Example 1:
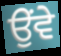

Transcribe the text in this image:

ਉੰਵੇ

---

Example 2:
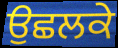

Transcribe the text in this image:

ਉਛਲਕੇ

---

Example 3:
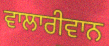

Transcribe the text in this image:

ਵਾਲਾਰੀਵਾਨ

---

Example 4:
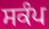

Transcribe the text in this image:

ਸਕੰਪ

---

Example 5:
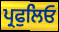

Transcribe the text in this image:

ਪ੍ਰਫੁਲਿਓ